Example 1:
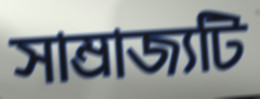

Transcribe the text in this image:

সাম্রাজ্যটি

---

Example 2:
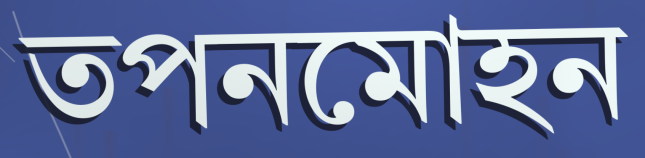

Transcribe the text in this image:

তপনমোহন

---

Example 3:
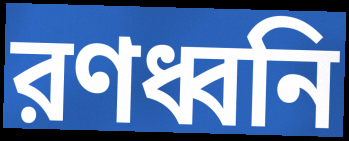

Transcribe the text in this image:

রণধ্বনি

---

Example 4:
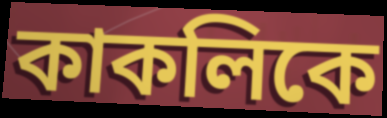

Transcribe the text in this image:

কাকলিকে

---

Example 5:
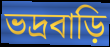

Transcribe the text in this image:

ভদ্রবাড়ি